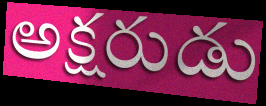
అక్షరుడు